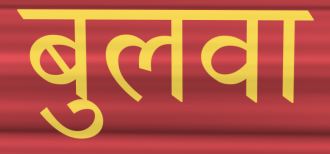
बुलवा